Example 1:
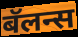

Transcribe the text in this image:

बॅलन्स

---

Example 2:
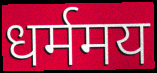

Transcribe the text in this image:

धर्ममय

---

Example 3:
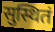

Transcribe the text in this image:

सुस्थितं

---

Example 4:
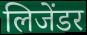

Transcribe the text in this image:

लिजेंडर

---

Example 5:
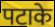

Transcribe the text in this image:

पटाके